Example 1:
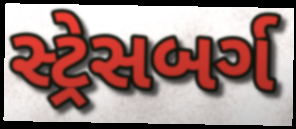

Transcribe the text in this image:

સ્ટ્રેસબર્ગ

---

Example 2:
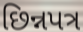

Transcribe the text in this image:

છિન્નપત્ર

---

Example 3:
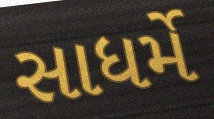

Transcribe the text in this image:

સાધર્મે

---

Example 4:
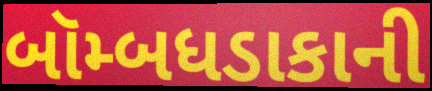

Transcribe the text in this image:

બૉમ્બધડાકાની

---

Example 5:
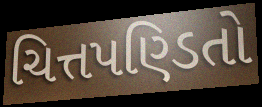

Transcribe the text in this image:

ચિત્તપણ્ડિતો